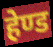
हेण्ड